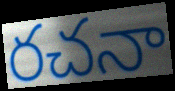
రచనా